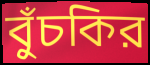
বুঁচকির